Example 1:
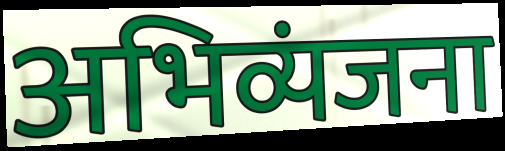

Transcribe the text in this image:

अभिव्यंजना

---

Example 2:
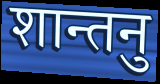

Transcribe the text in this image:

शान्तनु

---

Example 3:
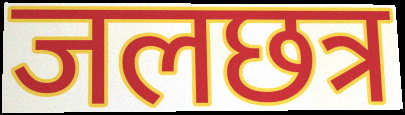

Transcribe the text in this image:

जलछत्र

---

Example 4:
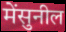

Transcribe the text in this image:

मेंसुनील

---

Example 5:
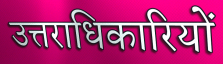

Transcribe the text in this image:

उत्तराधिकारियों